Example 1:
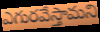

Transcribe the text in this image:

ఎగురవేస్తామని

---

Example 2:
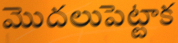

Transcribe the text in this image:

మొదలుపెట్టాక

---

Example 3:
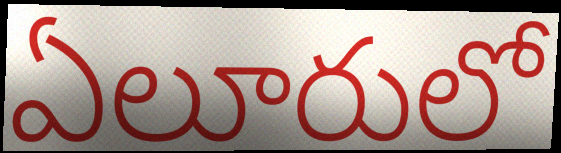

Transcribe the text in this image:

ఏలూరులో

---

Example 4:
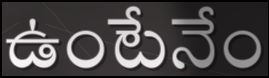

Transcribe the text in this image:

ఉంటేనేం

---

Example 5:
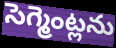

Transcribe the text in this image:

సెగ్మెంట్లను